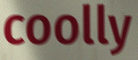
coolly